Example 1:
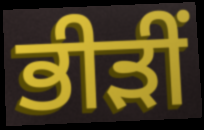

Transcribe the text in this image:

ਭੀੜੀਂ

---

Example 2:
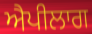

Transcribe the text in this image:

ਐਪੀਲਾਗ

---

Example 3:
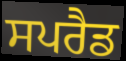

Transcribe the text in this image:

ਸਪਰੈਡ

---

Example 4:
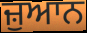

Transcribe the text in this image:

ਜ਼ੁਆਨ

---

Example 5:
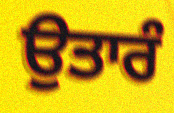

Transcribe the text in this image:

ਉਤਾਰੰ